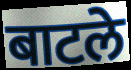
बाटले